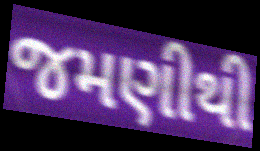
જમણીથી